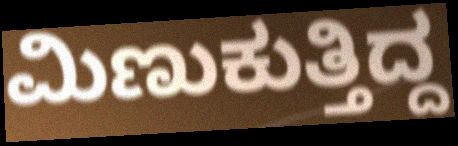
ಮಿಣುಕುತ್ತಿದ್ದ